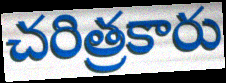
చరిత్రకారు